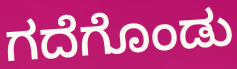
ಗದೆಗೊಂಡು